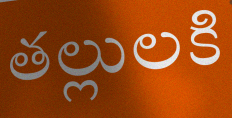
తల్లులకి